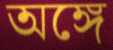
অঙ্গে